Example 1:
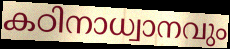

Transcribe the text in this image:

കഠിനാധ്വാനവും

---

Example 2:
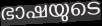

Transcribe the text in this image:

ഭാഷയുടെ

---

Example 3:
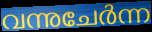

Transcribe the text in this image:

വന്നുചേർന്ന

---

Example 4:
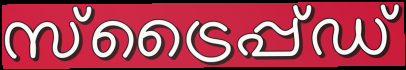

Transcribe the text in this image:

സ്ട്രൈപ്പ്ഡ്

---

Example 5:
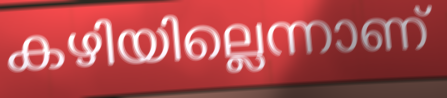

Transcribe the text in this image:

കഴിയില്ലെന്നാണ്